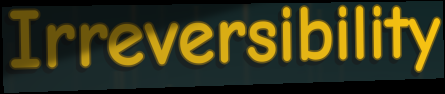
Irreversibility